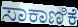
ಸಾಕಾಣಿಕೆ